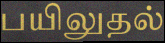
பயிலுதல்